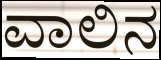
ವಾಲಿನ